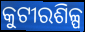
କୁଟୀରଶିଳ୍ପ